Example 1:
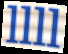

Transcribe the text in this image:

llll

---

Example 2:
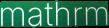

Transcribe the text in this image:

mathrm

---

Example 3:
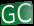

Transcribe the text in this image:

GC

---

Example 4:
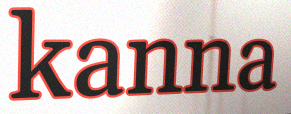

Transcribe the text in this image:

kanna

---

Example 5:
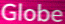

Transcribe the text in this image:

Globe